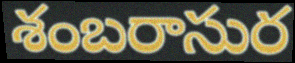
శంబరాసుర